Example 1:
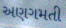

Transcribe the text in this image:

અણગમતી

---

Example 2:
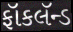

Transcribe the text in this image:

ફૉકલૅન્ડ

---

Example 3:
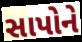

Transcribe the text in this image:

સાપોને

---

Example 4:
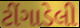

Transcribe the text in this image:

ટીંગાડેલી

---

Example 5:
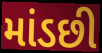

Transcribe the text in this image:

માંડછી